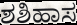
ಶಶಿಹಾಸ